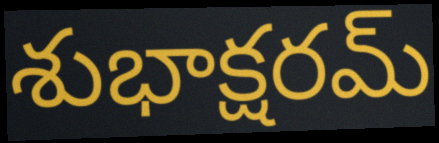
శుభాక్షరమ్